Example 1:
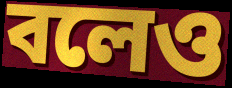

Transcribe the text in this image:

বলেও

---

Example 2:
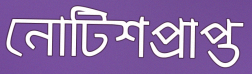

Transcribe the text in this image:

নোটিশপ্রাপ্ত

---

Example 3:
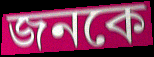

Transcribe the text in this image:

জনকে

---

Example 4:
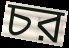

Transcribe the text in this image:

চর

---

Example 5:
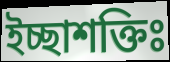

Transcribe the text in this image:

ইচ্ছাশক্তিঃ